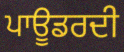
ਪਾਊਡਰਦੀ